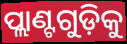
ପ୍ଲାଣ୍ଟଗୁଡ଼ିକୁ